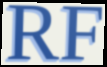
RF